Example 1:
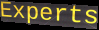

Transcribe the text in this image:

Experts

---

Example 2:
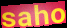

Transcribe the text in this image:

saho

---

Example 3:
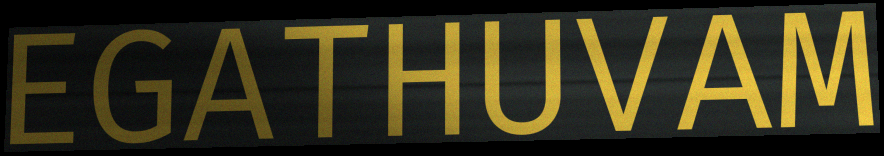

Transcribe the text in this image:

EGATHUVAM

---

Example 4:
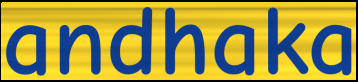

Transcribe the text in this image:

andhaka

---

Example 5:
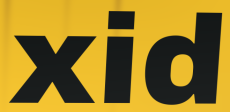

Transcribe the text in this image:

xid